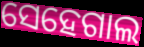
ସେହେଗାଲ